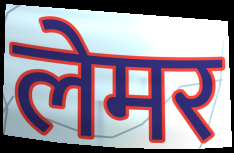
लेमर